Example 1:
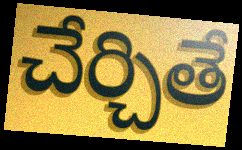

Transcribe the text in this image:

చేర్చితే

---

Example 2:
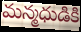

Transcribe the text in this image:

మన్మధుడికి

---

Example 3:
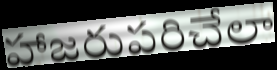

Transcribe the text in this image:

హాజరుపరిచేలా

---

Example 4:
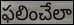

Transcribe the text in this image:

ఫలించేలా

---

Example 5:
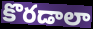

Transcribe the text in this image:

కొరడాలా